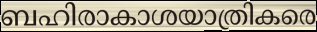
ബഹിരാകാശയാത്രികരെ